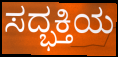
ಸದ್ಭಕ್ತಿಯ